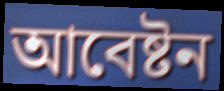
আবেষ্টন